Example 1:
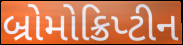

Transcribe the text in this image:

બ્રોમોક્રિપ્ટીન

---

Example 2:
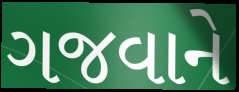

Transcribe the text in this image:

ગજવાને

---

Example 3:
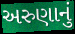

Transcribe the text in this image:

અરુણાનું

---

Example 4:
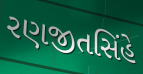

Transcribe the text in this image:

રણજીતસિંહે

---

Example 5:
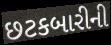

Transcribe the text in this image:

છટકબારીની